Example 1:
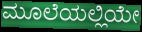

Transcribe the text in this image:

ಮೂಲೆಯಲ್ಲಿಯೇ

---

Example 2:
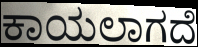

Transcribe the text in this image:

ಕಾಯಲಾಗದೆ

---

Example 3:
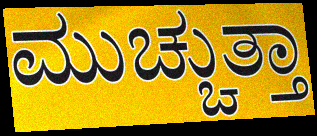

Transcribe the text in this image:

ಮುಚ್ಚುತ್ತಾ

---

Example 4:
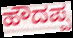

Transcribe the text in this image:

ಹೌದಪ್ಪ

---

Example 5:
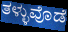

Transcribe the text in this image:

ತಳ್ಳುವೊಡೆ